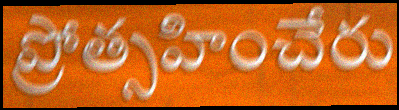
ప్రోత్సహించేరు